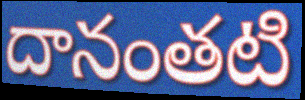
దానంతటి